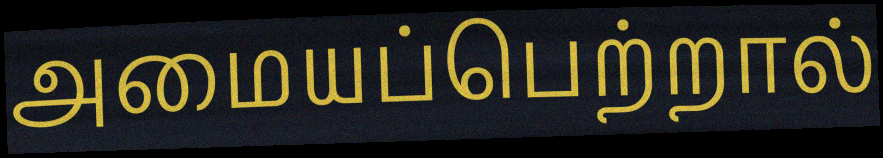
அமையப்பெற்றால்